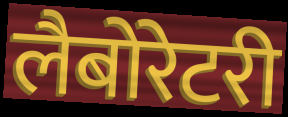
लैबोरेटरी